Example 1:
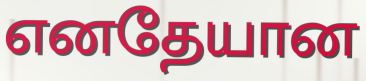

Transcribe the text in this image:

எனதேயான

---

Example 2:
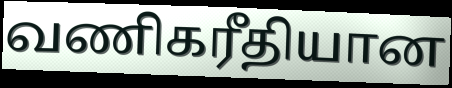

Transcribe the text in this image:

வணிகரீதியான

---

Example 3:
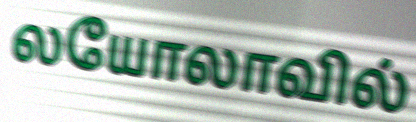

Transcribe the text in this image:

லயோலாவில்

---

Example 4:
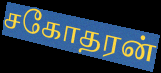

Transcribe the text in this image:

சகோதரன்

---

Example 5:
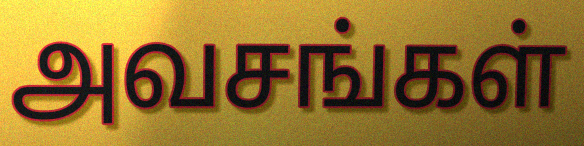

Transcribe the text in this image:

அவசங்கள்